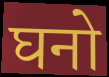
घनो